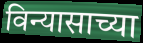
विन्यासाच्या